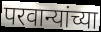
परवान्यांच्या